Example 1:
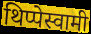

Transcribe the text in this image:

थिप्पेस्वामी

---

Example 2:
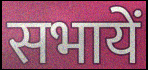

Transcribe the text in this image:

सभायें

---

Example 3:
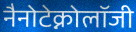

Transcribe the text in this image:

नैनोटेक्नोलॉजी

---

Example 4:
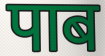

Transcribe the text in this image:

पाब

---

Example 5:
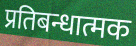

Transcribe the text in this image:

प्रतिबन्धात्मक